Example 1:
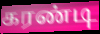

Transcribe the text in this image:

கரண்டி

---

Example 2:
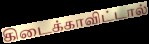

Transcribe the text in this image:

கிடைக்காவிட்டால்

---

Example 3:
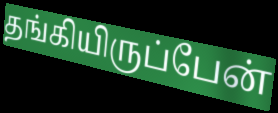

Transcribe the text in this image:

தங்கியிருப்பேன்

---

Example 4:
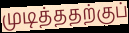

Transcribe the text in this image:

முடித்ததற்குப்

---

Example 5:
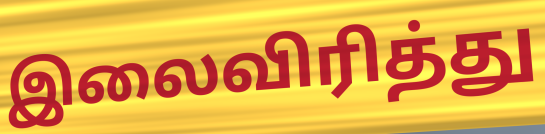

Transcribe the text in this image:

இலைவிரித்து